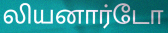
லியனார்டோ